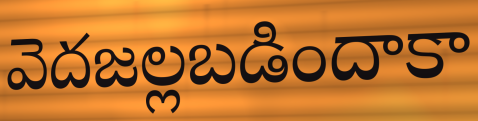
వెదజల్లబడిందాకా